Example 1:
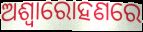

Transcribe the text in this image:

ଅଶ୍ୱାରୋହଣରେ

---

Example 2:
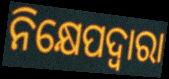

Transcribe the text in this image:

ନିକ୍ଷେପଦ୍ୱାରା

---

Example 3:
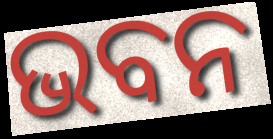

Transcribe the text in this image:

ଭବନ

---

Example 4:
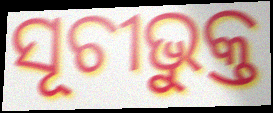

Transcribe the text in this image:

ସୂଚୀଭୁକ୍ତ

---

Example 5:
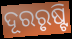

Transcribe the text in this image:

ଦୂରରୃଷ୍ଟି